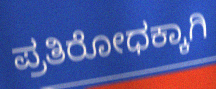
ಪ್ರತಿರೋಧಕ್ಕಾಗಿ